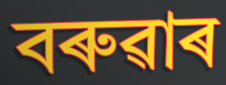
বৰুৱাৰ